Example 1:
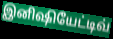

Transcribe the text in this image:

இனிஷியேட்டிவ்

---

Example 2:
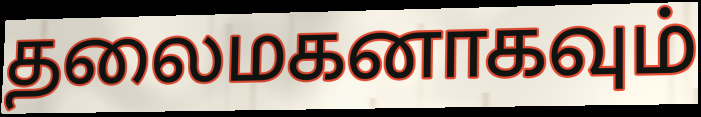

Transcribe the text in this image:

தலைமகனாகவும்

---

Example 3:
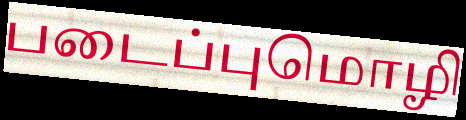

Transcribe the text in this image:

படைப்புமொழி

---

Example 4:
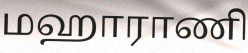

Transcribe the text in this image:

மஹாராணி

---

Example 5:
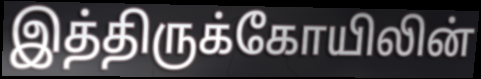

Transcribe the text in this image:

இத்திருக்கோயிலின்